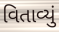
વિતાવ્યું